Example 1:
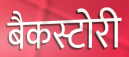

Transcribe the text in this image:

बैकस्टोरी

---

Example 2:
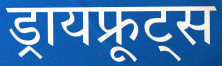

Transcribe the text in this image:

ड्रायफ्रूट्स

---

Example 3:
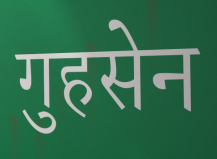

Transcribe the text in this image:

गुहसेन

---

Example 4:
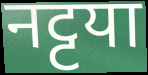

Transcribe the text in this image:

नट्टया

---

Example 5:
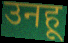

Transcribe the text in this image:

उनहू